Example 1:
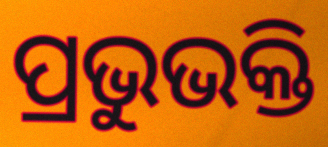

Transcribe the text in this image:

ପ୍ରଭୁଭକ୍ତି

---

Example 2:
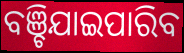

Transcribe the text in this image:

ବଞ୍ଚିଯାଇପାରିବ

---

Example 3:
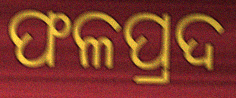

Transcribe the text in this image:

ଫଳପ୍ରଦ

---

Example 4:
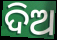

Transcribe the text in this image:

ଦିଅ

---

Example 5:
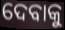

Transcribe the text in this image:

ଦେବାକୁ